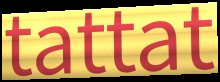
tattat